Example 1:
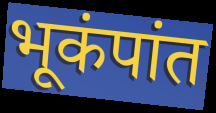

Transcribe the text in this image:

भूकंपांत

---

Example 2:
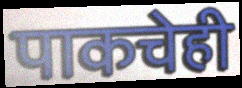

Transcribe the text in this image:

पाकचेही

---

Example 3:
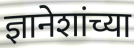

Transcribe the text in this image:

ज्ञानेशांच्या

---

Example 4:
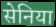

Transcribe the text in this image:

सेनिया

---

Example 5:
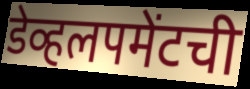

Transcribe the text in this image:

डेव्हलपमेंटची